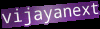
vijayanext